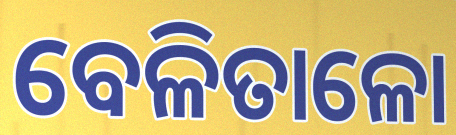
ବେଳିତାଳୋ